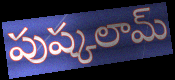
పుష్కలామ్